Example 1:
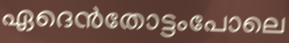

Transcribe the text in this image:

ഏദെൻതോട്ടംപോലെ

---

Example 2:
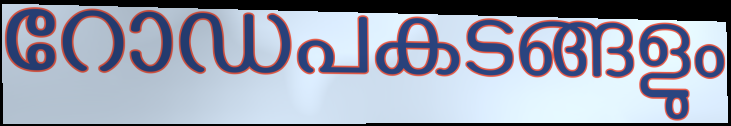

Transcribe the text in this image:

റോഡപകടങ്ങളും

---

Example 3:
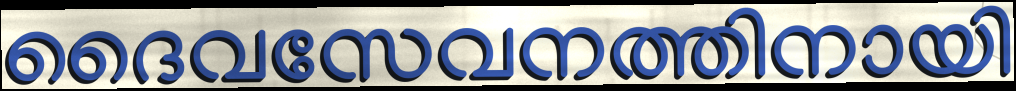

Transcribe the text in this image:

ദൈവസേവനത്തിനായി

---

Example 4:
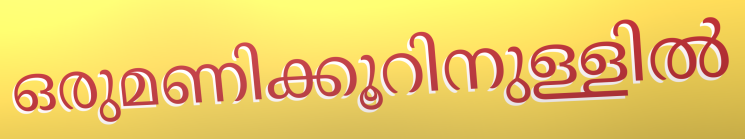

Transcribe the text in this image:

ഒരുമണിക്കൂറിനുള്ളിൽ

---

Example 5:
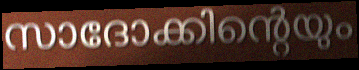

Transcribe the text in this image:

സാദോക്കിന്റെയും